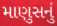
માણુસનું